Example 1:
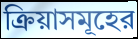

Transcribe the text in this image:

ক্রিয়াসমূহের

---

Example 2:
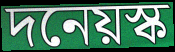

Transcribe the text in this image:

দনেয়স্ক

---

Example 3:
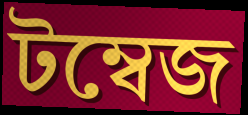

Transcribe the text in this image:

টম্বেজ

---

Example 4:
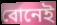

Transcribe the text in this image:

বোনেই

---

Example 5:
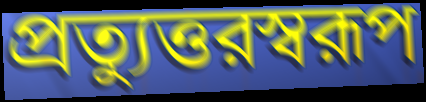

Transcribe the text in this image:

প্রত্যুত্তরস্বরূপ